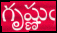
గృష్ణుఁ